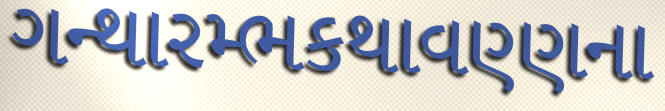
ગન્થારમ્ભકથાવણ્ણના